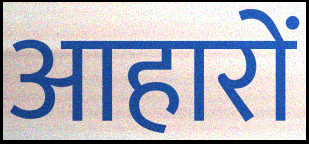
आहारों